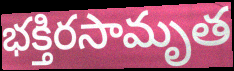
భక్తిరసామృత